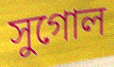
সুগোল